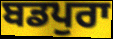
ਬਡਪੁਰਾ